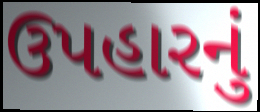
ઉપહારનું